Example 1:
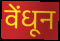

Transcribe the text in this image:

वेंधून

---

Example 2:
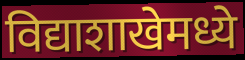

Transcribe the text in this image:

विद्याशाखेमध्ये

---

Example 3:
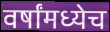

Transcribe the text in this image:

वर्षांमध्येच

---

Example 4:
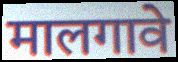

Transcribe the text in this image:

मालगावे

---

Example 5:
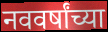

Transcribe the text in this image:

नववर्षांच्या